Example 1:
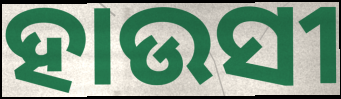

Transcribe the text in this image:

ହାଉସୀ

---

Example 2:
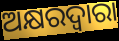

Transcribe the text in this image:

ଅକ୍ଷରଦ୍ଵାରା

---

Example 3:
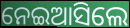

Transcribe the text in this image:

ନେଇଆସିଲେ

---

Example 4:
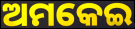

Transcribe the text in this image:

ଅମକେଇ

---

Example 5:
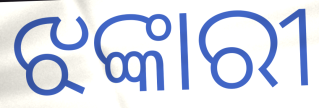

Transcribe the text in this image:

ଝଙ୍କାରୀ